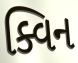
ક્વિન